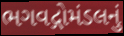
ભગવદ્ગોમંડલનું